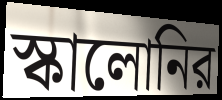
স্কালোনির